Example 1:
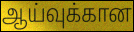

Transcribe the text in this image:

ஆய்வுக்கான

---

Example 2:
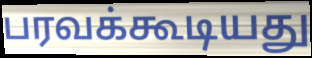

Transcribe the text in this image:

பரவக்கூடியது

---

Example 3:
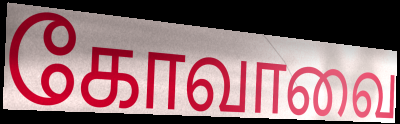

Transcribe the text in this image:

கோவாவை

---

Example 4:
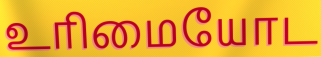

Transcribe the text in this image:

உரிமையோட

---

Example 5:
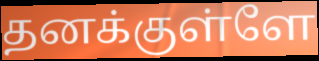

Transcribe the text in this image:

தனக்குள்ளே